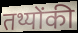
तथ्योंकी